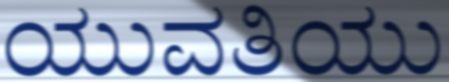
ಯುವತಿಯು